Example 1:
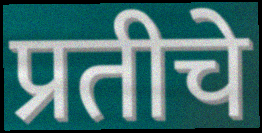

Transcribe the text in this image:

प्रतीचे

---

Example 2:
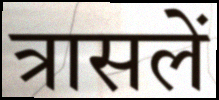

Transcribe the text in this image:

त्रासलें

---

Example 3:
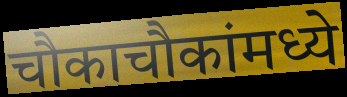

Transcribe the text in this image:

चौकाचौकांमध्ये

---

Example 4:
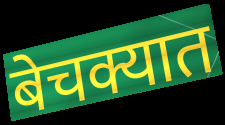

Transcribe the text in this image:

बेचक्यात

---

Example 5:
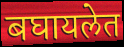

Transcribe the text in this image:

बघायलेत